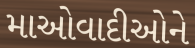
માઓવાદીઓને